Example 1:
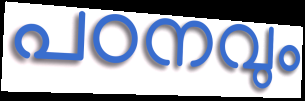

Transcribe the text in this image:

പഠനവും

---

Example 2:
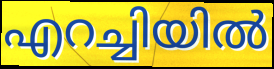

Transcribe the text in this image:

എറച്ചിയിൽ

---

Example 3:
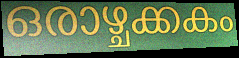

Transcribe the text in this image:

ഒരാഴ്ചക്കകം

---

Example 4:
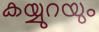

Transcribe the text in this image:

കയ്യുറയും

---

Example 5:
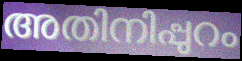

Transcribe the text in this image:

അതിനിപ്പുറം